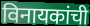
विनायकांची